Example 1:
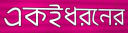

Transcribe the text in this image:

একইধরনের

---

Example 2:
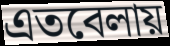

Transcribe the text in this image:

এতবেলায়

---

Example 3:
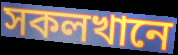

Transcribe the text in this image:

সকলখানে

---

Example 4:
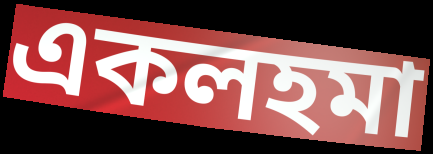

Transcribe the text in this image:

একলহমা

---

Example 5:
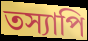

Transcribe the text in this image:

তস্যাপি